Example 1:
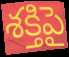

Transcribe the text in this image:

శక్తిపై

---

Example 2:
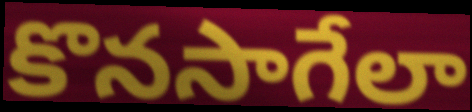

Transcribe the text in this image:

కొనసాగేలా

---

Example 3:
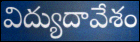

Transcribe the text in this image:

విద్యుదావేశం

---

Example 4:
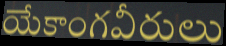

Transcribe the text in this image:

యేకాంగవీరులు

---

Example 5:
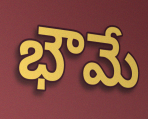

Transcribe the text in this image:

భౌమే